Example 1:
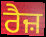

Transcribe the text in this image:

ਰੈਜ਼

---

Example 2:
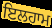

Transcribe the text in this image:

ਇਲਹਾਮ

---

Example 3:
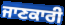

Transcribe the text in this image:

ਜਾਣਕਾਰੀ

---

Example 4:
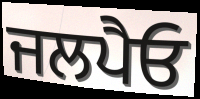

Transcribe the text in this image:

ਜਲਪੈਓ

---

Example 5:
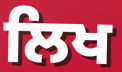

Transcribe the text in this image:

ਲਿਖ